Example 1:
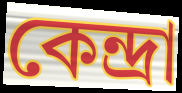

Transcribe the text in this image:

কেন্দ্রা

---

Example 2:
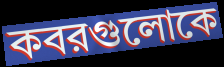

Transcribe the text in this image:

কবরগুলোকে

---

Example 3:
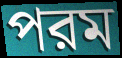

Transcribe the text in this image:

পরম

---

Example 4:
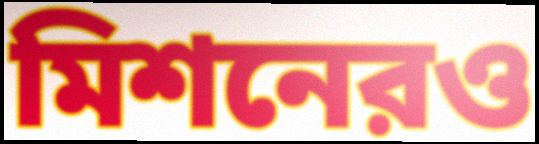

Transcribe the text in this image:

মিশনেরও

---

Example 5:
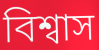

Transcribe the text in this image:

বিশ্বাস